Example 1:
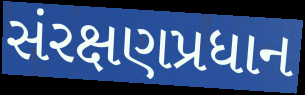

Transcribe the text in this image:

સંરક્ષણપ્રધાન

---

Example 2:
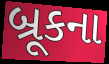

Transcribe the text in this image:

બ્રૂકના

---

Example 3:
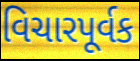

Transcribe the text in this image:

વિચારપૂર્વક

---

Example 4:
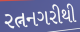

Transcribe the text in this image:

રત્નનગરીથી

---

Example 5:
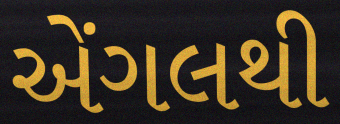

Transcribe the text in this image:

એંગલથી